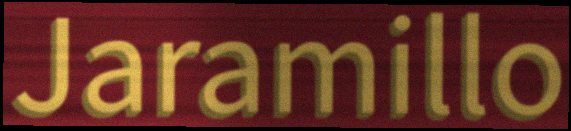
Jaramillo